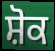
ਸ਼ੋਕ